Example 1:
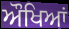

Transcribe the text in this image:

ਔਖਿਆਂ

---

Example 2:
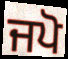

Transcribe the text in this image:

ਜਪੋ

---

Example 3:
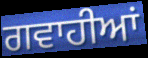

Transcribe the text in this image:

ਗਵਾਹੀਆਂ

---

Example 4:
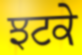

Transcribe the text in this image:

ਝਟਕੇ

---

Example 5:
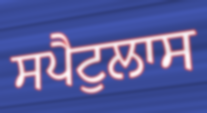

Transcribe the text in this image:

ਸਪੈਟੁਲਾਸ